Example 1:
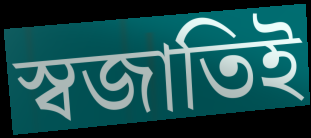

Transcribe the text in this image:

স্বজাতিই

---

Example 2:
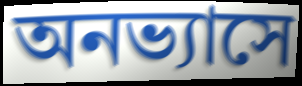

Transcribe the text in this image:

অনভ্যাসে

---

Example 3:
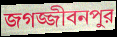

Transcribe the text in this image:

জগজ্জীবনপুর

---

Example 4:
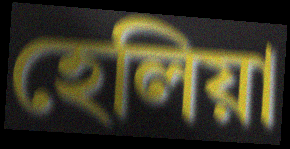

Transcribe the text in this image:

হেলিয়া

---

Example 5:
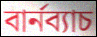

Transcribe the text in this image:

বার্নব্যাচ